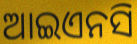
ଆଇଏନସି